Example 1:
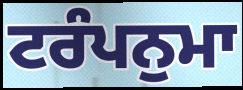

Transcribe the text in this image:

ਟਰੰਪਨੁਮਾ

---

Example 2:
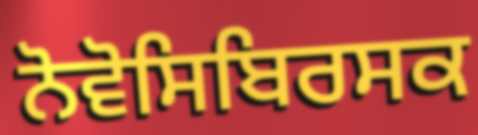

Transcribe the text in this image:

ਨੋਵੋਸਿਬਿਰਸਕ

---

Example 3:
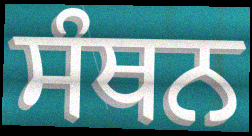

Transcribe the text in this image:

ਸੰਥਨ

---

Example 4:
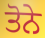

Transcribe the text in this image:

ਤੋਨੇ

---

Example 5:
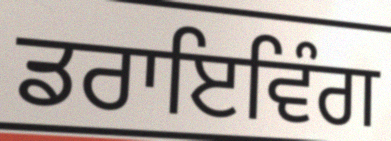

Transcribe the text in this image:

ਡਰਾਇਵਿੰਗ